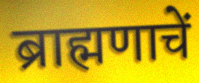
ब्राह्मणाचें